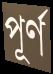
পূৰ্ণ